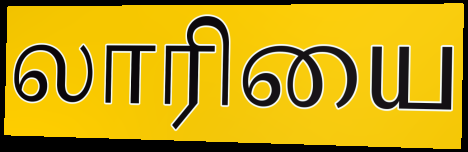
லாரியை